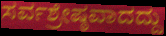
ಸರ್ವಶ್ರೇಷ್ಠವಾದದ್ದು